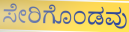
ಸೇರಿಗೊಂಡವು